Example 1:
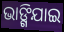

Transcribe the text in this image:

ଭାଙ୍ଗିଯାଇ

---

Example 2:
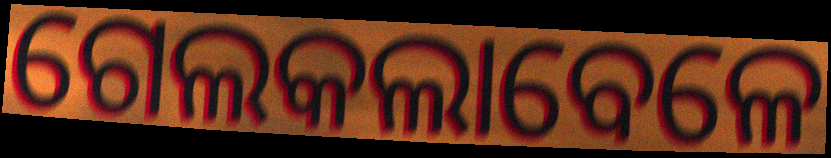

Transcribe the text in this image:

ଗେଲକଲାବେଳେ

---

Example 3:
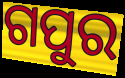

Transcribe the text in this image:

ଗପୁର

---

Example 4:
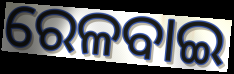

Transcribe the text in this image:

ରେଳବାଇ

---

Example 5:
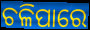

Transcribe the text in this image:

ଚଳିପାରେ